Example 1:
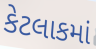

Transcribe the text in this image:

કેટલાકમાં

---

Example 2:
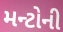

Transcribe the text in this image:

મન્ટોની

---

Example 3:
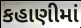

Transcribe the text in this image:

કહાણીમાં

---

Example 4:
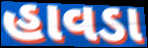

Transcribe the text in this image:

હાવડા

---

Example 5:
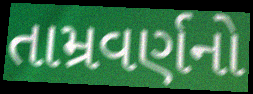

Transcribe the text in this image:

તામ્રવર્ણનો